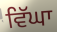
ਵਿੱਘਾ